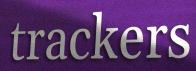
trackers